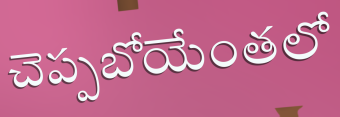
చెప్పబోయేంతలో